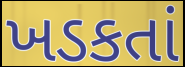
ખડકતાં